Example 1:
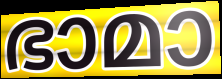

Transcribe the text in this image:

ഭാമാ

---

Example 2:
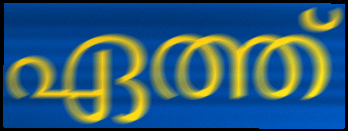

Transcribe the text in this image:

ഏത്ത്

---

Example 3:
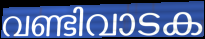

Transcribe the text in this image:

വണ്ടിവാടക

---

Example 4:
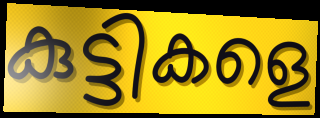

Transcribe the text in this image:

കുട്ടികളെ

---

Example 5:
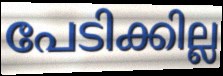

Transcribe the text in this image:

പേടിക്കില്ല